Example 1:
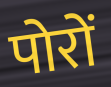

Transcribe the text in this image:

पोरों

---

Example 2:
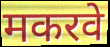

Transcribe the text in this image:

मकरवे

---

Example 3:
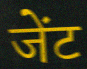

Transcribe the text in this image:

जेंट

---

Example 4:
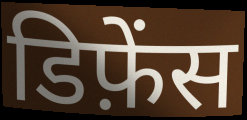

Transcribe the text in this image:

डिफ़ेंस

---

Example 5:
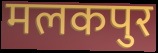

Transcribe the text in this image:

मलकपुर